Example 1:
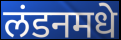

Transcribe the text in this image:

लंडनमधे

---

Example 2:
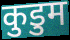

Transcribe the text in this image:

कुडुम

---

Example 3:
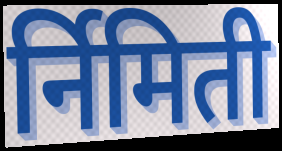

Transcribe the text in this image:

र्निमिती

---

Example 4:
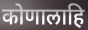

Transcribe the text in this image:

कोणालाहि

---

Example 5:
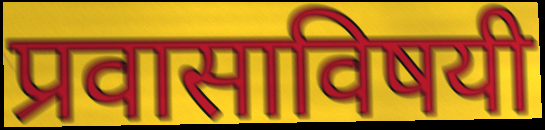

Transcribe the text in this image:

प्रवासाविषयी